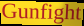
Gunfight